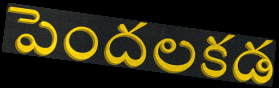
పెందలకడ